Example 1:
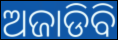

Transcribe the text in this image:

ଅଜାଡିବି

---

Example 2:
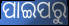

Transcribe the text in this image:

ପାଇପରୁ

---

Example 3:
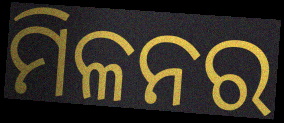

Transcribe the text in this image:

ମିଳନର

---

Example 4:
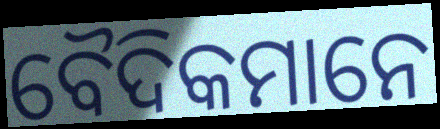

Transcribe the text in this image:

ବୈଦିକମାନେ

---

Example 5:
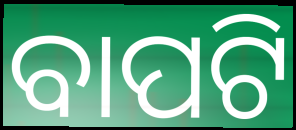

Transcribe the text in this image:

ବାପଟି